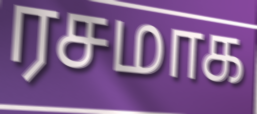
ரசமாக